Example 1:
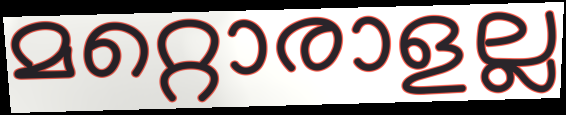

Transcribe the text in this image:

മറ്റൊരാളല്ല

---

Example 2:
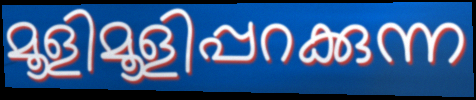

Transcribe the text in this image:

മൂളിമൂളിപ്പറക്കുന്ന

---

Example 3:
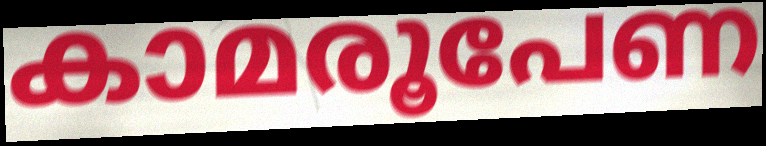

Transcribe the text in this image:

കാമരൂപേണ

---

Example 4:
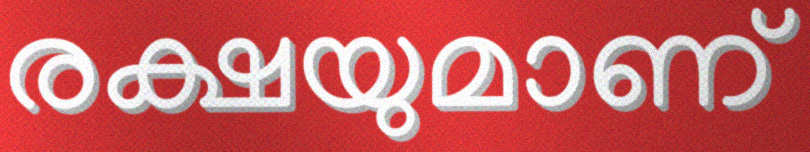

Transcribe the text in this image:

രക്ഷയുമാണ്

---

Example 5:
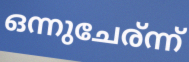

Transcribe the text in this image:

ഒന്നുചേര്ന്ന്